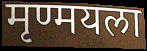
मृण्मयला